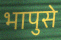
भापुसे